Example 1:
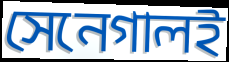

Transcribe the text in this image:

সেনেগালই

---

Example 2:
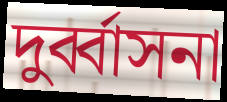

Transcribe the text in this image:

দুর্ব্বাসনা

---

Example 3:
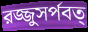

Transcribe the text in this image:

রজ্জুসর্পবত্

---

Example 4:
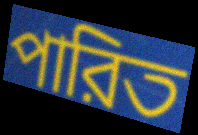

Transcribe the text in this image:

পারিত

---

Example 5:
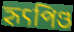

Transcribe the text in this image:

হৃৎপিণ্ড